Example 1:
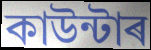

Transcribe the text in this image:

কাউন্টাৰ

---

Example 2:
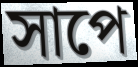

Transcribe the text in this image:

সাপে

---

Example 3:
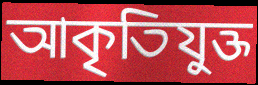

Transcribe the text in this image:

আকৃতিযুক্ত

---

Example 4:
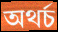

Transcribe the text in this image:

অথৰ্চ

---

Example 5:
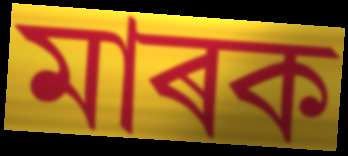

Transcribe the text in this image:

মাৰক